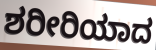
ಶರೀರಿಯಾದ